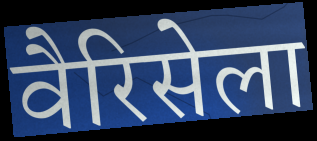
वैरिसेला